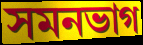
সমনভাগ